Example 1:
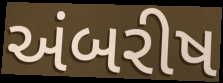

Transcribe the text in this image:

અંબરીષ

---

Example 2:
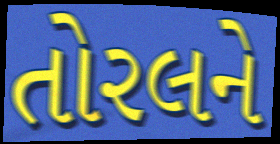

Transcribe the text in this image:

તોરલને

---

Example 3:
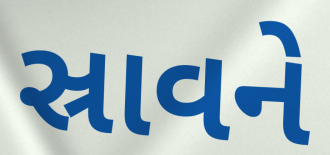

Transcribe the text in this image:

સ્રાવને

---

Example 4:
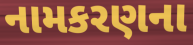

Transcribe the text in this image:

નામકરણના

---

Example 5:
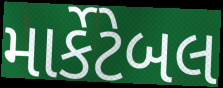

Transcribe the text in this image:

માર્કેટેબલ